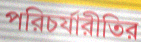
পরিচর্যারীতির